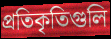
প্রতিকৃতিগুলি